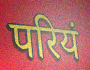
परियं